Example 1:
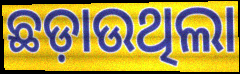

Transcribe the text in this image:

ଛଡ଼ାଉଥିଲା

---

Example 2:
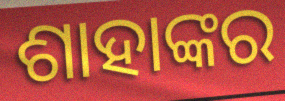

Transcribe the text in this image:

ଶାହାଙ୍କର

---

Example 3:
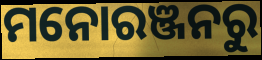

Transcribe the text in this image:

ମନୋରଞ୍ଜନରୁ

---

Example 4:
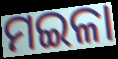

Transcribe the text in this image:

ମଇଳା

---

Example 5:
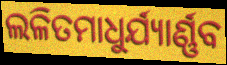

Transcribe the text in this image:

ଲଳିତମାଧୁର୍ଯ୍ୟାର୍ଣ୍ଣବ